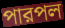
পারপল